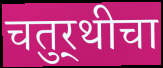
चतुर्थीचा